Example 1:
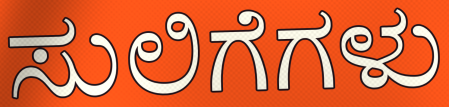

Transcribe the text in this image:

ಸುಲಿಗೆಗಳು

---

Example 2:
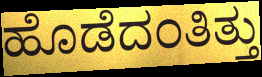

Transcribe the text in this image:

ಹೊಡೆದಂತಿತ್ತು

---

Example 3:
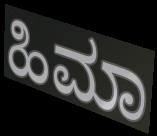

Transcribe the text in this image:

ಹಿಮಾ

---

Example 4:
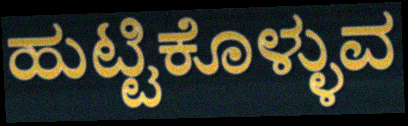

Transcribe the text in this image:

ಹುಟ್ಟಿಕೊಳ್ಳುವ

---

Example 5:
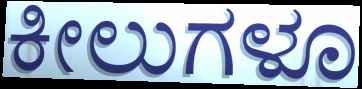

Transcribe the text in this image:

ಕೀಲುಗಳೂ